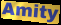
Amity